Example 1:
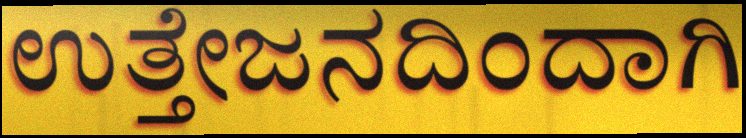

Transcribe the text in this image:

ಉತ್ತೇಜನದಿಂದಾಗಿ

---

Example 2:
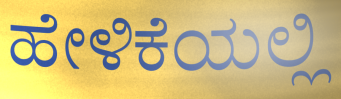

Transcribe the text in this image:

ಹೇಳಿಕೆಯಲ್ಲಿ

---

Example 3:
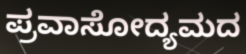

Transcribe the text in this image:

ಪ್ರವಾಸೋದ್ಯಮದ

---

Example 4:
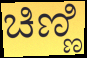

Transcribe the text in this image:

ಚಿಣ್ಣಿ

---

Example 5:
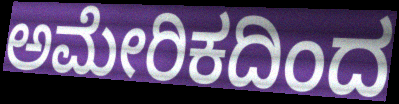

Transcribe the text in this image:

ಅಮೇರಿಕದಿಂದ